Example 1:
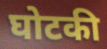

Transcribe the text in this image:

घोटकी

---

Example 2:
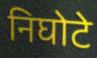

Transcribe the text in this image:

निघोटे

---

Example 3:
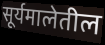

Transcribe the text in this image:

सूर्यमालेतील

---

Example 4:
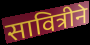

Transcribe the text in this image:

सावित्रीने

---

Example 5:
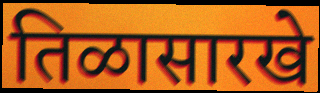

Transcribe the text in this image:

तिळासारखे